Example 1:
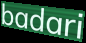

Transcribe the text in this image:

badari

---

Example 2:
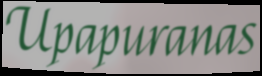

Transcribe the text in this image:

Upapuranas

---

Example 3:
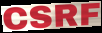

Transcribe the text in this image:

CSRF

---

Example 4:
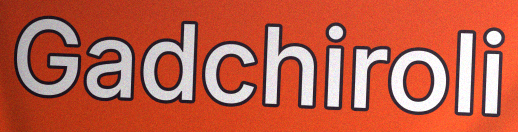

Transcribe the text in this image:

Gadchiroli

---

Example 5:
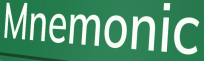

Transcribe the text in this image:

Mnemonic